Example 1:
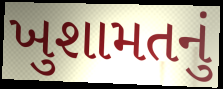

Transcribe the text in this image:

ખુશામતનું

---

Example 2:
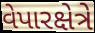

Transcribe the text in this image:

વેપારક્ષેત્રે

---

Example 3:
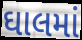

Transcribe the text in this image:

ઘાલમાં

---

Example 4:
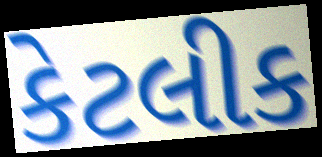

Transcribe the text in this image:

કેટલીક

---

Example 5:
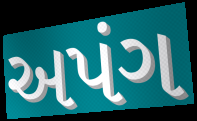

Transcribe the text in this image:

અપંગ